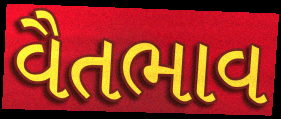
વૈતભાવ